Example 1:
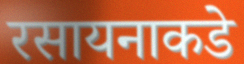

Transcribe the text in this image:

रसायनाकडे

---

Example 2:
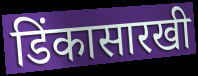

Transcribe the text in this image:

डिंकासारखी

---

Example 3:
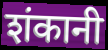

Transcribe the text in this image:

शंकानी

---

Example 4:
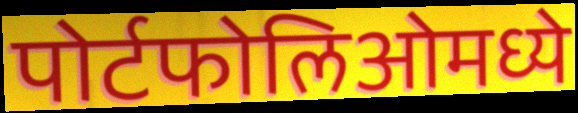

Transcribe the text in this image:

पोर्टफोलिओमध्ये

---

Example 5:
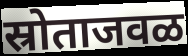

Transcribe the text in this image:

स्रोताजवळ